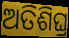
ଅତିଶିଘ୍ର